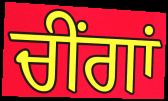
ਚੀਂਗਾਂ